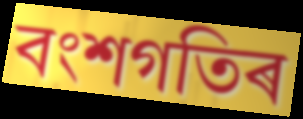
বংশগতিৰ